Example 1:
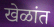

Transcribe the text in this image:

खेळांत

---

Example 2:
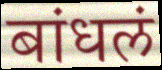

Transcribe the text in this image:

बांधलं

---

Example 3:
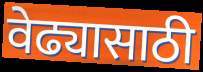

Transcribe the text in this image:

वेढ्यासाठी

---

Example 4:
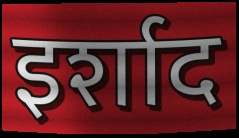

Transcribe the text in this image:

इर्शाद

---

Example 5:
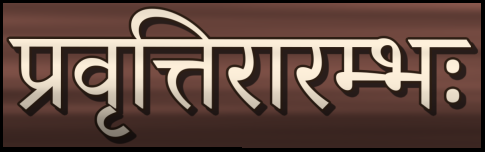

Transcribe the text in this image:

प्रवृत्तिरारम्भः